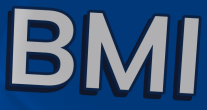
BMI